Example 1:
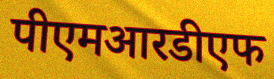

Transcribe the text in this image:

पीएमआरडीएफ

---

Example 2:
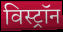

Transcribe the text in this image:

विस्ट्रॉन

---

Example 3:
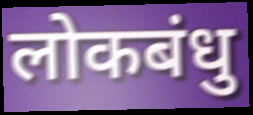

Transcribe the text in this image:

लोकबंधु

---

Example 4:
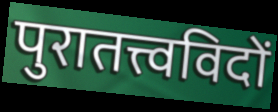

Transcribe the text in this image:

पुरातत्त्वविदों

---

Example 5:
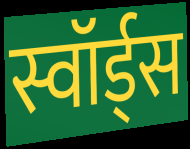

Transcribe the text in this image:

स्‍वॉर्ड्स